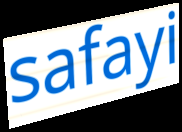
safayi